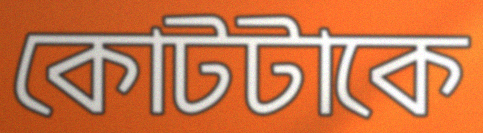
কোটটাকে